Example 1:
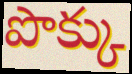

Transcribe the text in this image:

పొక్కు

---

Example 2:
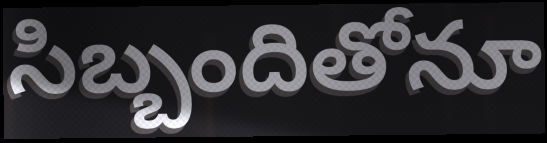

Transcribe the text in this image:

సిబ్బందితోనూ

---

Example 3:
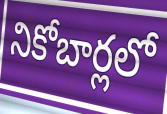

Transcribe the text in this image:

నికోబార్లలో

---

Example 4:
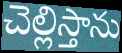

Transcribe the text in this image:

చెల్లిస్తాను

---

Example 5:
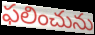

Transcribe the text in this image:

ఫలించును